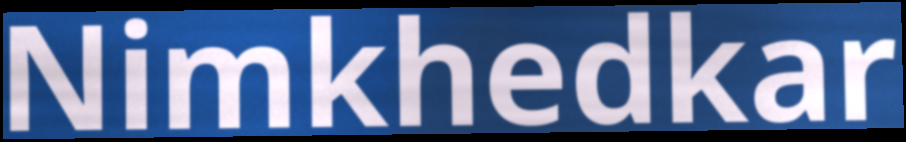
Nimkhedkar